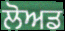
ਲੋਅਡ